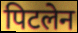
पिटलेन